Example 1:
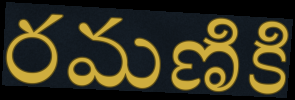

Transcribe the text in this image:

రమణికి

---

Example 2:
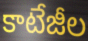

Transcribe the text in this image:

కాటేజీల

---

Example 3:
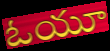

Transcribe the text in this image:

ఓయూ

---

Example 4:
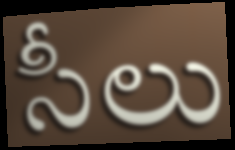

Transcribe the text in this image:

సీలు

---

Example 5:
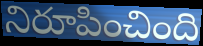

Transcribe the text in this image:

నిరూపించింది